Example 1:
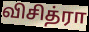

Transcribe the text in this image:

விசித்ரா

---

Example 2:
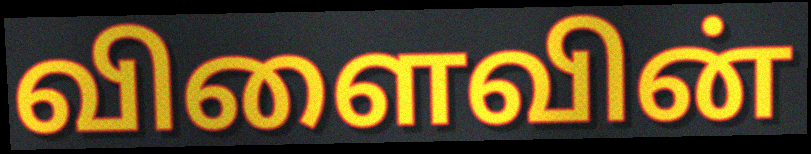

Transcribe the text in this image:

விளைவின்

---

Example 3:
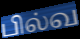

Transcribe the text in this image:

பில்வ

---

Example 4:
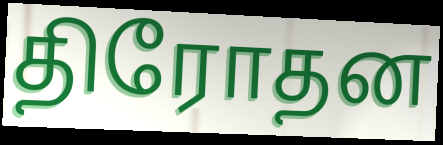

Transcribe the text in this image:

திரோதன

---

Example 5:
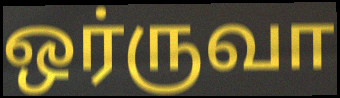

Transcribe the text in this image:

ஒர்ருவா